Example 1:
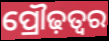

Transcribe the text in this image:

ପ୍ରୌଢ଼ତ୍ୱର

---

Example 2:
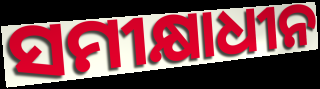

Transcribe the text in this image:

ସମୀକ୍ଷାଧୀନ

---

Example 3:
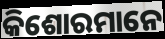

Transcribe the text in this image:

କିଶୋରମାନେ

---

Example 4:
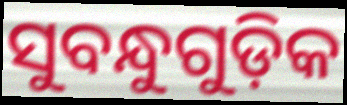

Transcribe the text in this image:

ସୁବନ୍ଧୁଗୁଡ଼ିକ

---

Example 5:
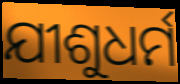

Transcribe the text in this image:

ଯୀଶୁଧର୍ମ